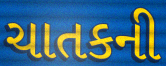
ચાતકની